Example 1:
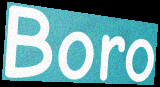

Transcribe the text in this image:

Boro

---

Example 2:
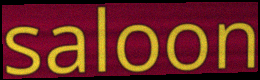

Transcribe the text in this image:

saloon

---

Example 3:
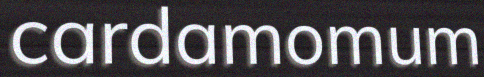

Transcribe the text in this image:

cardamomum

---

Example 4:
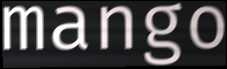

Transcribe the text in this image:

mango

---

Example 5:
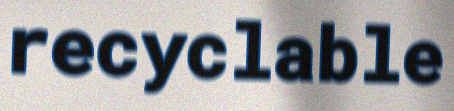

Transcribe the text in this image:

recyclable